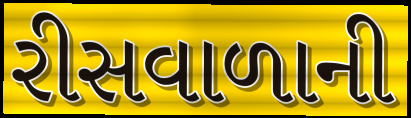
રીસવાળાની